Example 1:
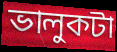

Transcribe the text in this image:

ভালুকটা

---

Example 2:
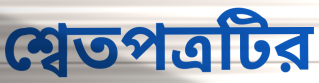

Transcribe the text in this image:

শ্বেতপত্রটির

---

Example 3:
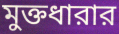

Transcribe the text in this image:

মুক্তধারার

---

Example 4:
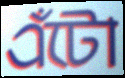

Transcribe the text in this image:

এঁটো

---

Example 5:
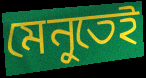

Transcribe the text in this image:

মেনুতেই